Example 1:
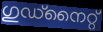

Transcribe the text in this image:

ഗുഡ്നൈറ്റ്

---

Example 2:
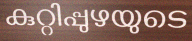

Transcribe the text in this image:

കുറ്റിപ്പുഴയുടെ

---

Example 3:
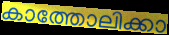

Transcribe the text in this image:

കാത്തോലിക്കാ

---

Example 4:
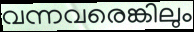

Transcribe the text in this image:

വന്നവരെങ്കിലും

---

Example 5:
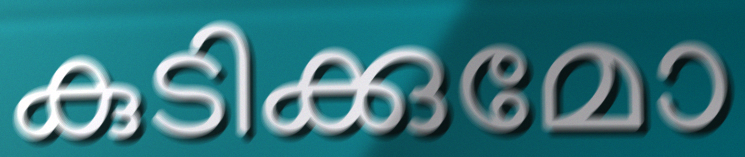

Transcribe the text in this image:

കുടിക്കുമോ